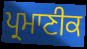
ਪ੍ਰਮਾਣੀਕ